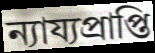
ন্যায্যপ্রাপ্তি